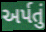
અર્પતું